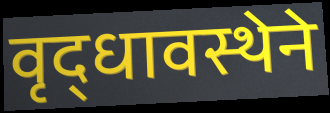
वृद्धावस्थेने